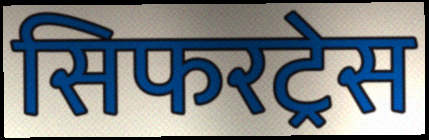
सिफरट्रेस